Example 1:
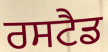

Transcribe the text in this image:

ਰਸਟੈਡ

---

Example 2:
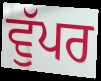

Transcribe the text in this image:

ਵੁੱਪਰ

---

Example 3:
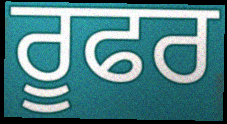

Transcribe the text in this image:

ਰੂਫਰ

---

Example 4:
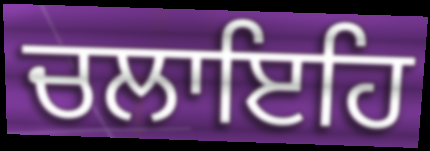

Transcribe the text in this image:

ਚਲਾਇਹਿ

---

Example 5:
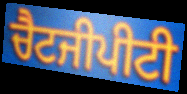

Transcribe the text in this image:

ਚੈਟਜੀਪੀਟੀ